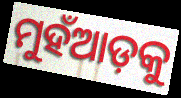
ମୁହଁଆଡ଼କୁ